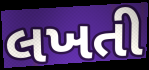
લખતી